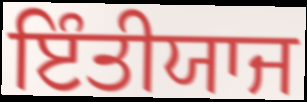
ਇੰਤੀਯਾਜ